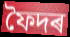
ফৈদৰ